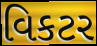
વિકટર